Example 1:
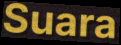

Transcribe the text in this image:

Suara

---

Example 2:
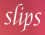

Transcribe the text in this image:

slips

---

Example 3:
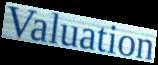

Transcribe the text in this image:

Valuation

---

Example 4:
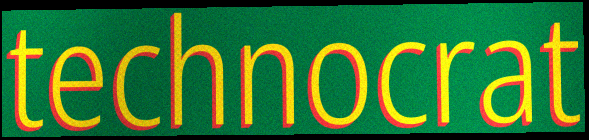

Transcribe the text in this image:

technocrat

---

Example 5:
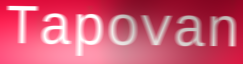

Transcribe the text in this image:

Tapovan